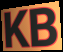
KB